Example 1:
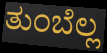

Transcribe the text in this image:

ತುಂಬೆಲ್ಲ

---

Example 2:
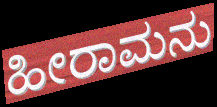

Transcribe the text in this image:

ಹೀರಾಮನು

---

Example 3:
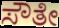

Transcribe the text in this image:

ಸೌತೇ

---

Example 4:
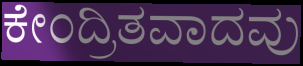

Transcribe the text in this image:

ಕೇಂದ್ರಿತವಾದವು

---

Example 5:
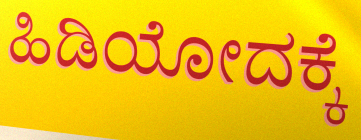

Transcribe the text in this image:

ಹಿಡಿಯೋದಕ್ಕೆ